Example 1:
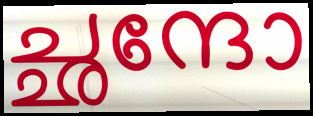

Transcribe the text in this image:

ച്ഛന്ദോ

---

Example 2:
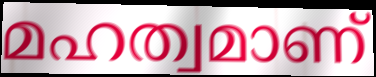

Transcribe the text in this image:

മഹത്വമാണ്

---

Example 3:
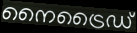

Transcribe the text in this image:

നൈട്രൈഡ്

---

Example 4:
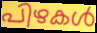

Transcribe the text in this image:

പിഴകൾ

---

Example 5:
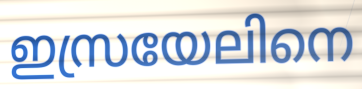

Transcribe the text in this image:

ഇസ്രയേലിനെ